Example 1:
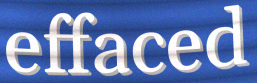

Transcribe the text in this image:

effaced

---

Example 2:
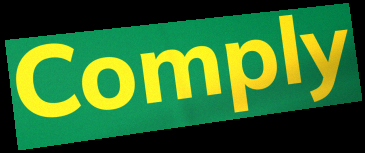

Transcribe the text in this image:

Comply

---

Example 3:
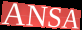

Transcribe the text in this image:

ANSA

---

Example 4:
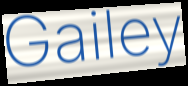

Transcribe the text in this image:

Gailey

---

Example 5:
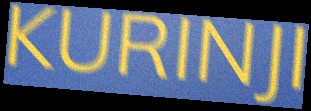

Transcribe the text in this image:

KURINJI